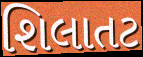
શિલાતટ